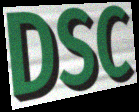
DSC